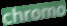
chromo